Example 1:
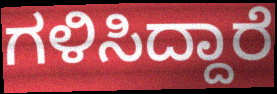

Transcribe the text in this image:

ಗಳಿಸಿದ್ದಾರೆ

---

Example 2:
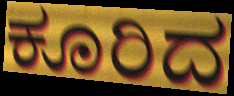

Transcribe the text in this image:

ಕೂರಿದ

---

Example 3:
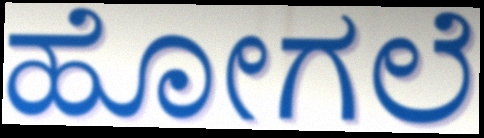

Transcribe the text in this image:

ಹೋಗಲೆ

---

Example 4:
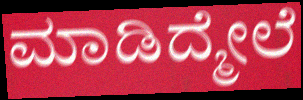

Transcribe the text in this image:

ಮಾಡಿದ್ಮೇಲೆ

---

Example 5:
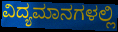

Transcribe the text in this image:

ವಿದ್ಯಮಾನಗಳಲ್ಲಿ